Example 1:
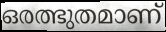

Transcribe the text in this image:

ഒരത്ഭുതമാണ്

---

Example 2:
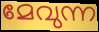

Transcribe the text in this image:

മേവുന്ന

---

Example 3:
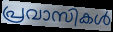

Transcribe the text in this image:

പ്രവാസികൾ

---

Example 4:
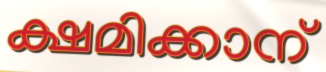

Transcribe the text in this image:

ക്ഷമിക്കാന്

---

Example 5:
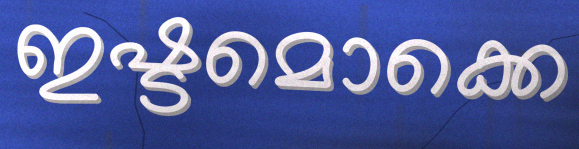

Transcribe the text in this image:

ഇഷ്ടമൊക്കെ